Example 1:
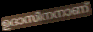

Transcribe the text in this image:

ഉദാസീനനാണ്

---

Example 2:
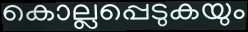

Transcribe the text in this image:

കൊല്ലപ്പെടുകയും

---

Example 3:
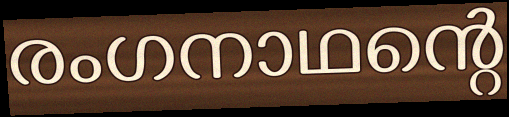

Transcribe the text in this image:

രംഗനാഥന്റെ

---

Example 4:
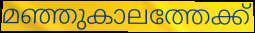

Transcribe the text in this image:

മഞ്ഞുകാലത്തേക്ക്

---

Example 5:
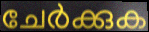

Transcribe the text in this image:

ചേർക്കുക